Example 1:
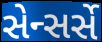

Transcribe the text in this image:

સેન્સર્સે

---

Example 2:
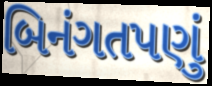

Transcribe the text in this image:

બિનંગતપણું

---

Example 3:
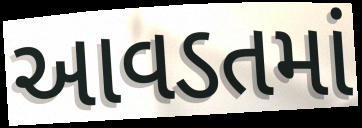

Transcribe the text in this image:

આવડતમાં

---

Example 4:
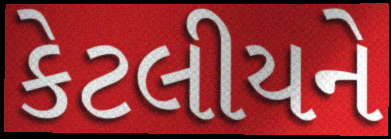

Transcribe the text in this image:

કેટલીયને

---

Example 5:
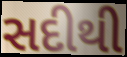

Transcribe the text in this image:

સદીથી